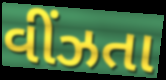
વીંઝતા